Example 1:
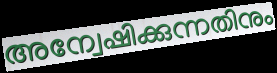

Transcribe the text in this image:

അന്വേഷിക്കുന്നതിനും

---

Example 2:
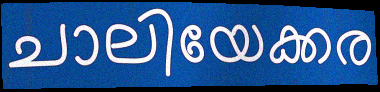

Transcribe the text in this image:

ചാലിയേക്കര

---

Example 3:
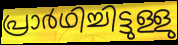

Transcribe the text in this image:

പ്രാർഥിച്ചിട്ടുള്ളു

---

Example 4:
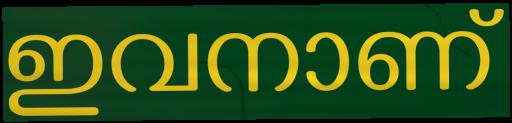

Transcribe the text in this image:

ഇവനാണ്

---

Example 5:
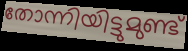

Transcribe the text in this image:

തോന്നിയിട്ടുമുണ്ട്